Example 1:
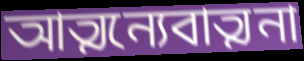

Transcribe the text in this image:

আত্মন্যেবাত্মনা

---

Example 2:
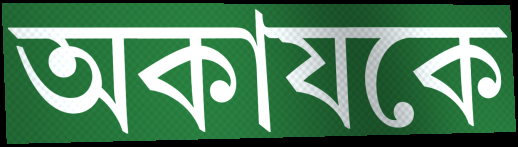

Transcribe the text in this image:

অকাযকে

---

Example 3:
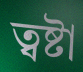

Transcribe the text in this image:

ত্বষ্টা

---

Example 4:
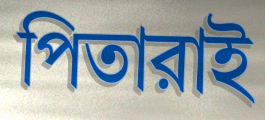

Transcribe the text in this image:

পিতারাই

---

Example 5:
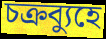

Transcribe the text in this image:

চক্রব্যুহে